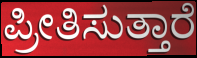
ಪ್ರೀತಿಸುತ್ತಾರೆ